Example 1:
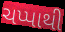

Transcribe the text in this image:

ચપ્પાથી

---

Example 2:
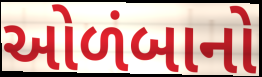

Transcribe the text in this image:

ઓળંબાનો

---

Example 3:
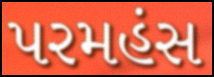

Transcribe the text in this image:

પરમહંસ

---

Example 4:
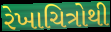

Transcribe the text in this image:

રેખાચિત્રોથી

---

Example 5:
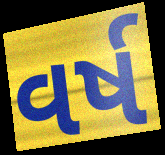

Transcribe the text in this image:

વર્ષ